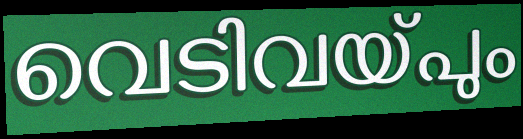
വെടിവയ്പും